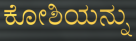
ಕೋಶಿಯನ್ನು